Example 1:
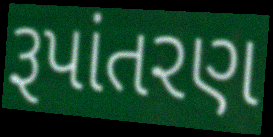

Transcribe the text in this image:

રૂપાંતરણ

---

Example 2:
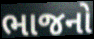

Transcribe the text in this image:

ભાજનો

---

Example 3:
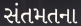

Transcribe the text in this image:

સંતમતના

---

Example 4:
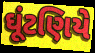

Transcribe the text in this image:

ઘૂંટણિયે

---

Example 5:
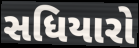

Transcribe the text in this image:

સધિયારો